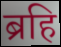
ब्रहि